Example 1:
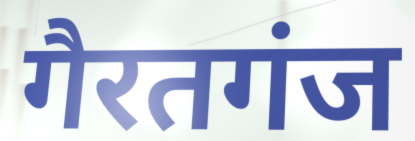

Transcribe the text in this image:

गैरतगंज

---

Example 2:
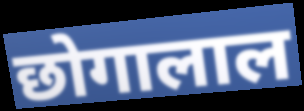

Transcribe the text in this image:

छोगालाल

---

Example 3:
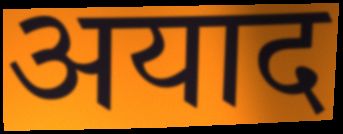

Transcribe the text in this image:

अयाद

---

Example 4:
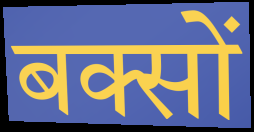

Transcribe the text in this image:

बक्सों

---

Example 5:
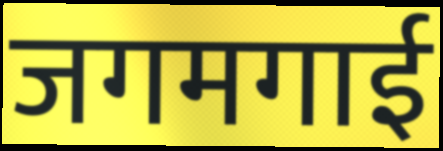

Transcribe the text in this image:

जगमगाई